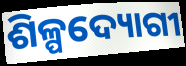
ଶିଳ୍ପଦ୍ୟୋଗୀ